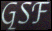
GSF